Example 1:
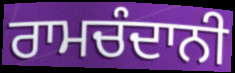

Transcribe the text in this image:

ਰਾਮਚੰਦਾਨੀ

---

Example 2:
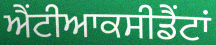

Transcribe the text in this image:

ਐਂਟੀਆਕਸੀਡੈਂਟਾਂ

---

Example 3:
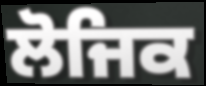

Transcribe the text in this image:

ਲੋਜਿਕ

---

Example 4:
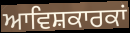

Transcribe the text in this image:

ਆਵਿਸ਼ਕਾਰਕਾਂ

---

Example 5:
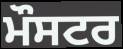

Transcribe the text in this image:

ਮੌਸਟਰ